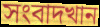
সংবাদখান